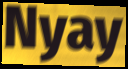
Nyay